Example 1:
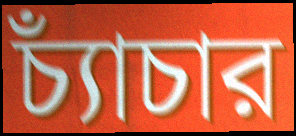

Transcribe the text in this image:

চ্যাঁচার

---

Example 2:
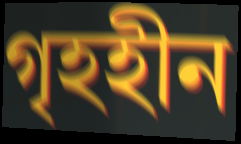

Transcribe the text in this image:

গৃহহীন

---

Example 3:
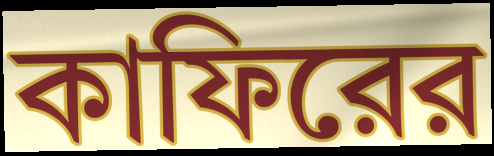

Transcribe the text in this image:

কাফিরের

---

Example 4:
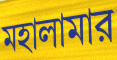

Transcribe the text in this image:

মহালামার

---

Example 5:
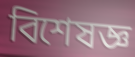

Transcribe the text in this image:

বিশেষজ্ঞ